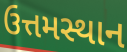
ઉત્તમસ્થાન